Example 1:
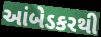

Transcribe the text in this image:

આંબેડકરથી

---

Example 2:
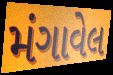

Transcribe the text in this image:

મંગાવેલ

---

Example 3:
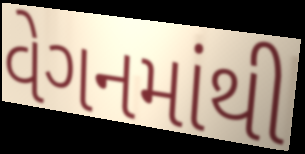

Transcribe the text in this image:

વેગનમાંથી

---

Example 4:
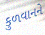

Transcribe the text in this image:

કુળવાનને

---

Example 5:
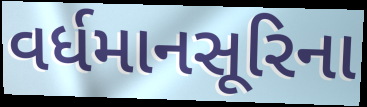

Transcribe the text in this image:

વર્ધમાનસૂરિના